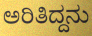
ಅರಿತಿದ್ದನು